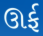
ઊર્ફ